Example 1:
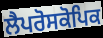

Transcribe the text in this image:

ਲੈਪਰੋਸਕੋਪਿਕ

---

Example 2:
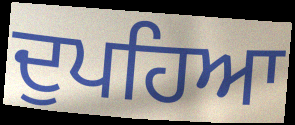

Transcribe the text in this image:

ਦੁਪਹਿਆ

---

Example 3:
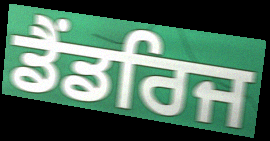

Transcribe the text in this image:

ਡੈਂਡਰਿਜ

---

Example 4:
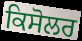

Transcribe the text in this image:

ਕਿਸੋਲਰ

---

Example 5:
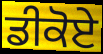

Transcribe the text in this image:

ਡੀਕੋਏ